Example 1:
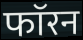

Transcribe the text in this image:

फॉरन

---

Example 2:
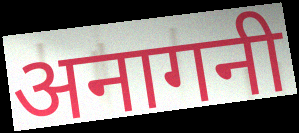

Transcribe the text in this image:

अनागनी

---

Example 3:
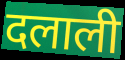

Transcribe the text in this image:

दलाली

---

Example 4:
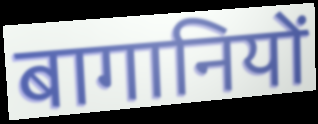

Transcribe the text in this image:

बागानियों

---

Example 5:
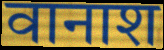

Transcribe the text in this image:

वानाश